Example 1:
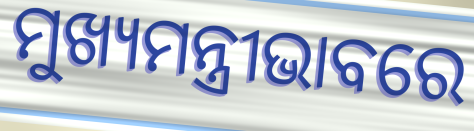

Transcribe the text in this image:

ମୁଖ୍ୟମନ୍ତ୍ରୀଭାବରେ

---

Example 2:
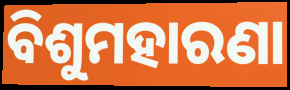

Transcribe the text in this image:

ବିଶୁମହାରଣା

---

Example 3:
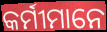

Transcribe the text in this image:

କର୍ମୀମାନେ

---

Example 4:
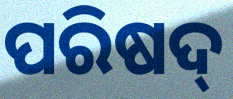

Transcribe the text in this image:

ପରିଷଦ୍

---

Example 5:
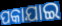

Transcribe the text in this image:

ପକାଯାଇ